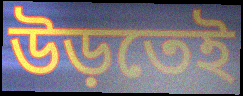
উড়তেই